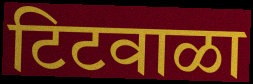
टिटवाळा